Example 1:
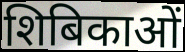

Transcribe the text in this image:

शिबिकाओं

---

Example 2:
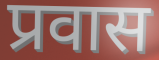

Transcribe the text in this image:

प्रवास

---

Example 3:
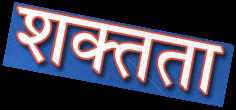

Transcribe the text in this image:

शक्तता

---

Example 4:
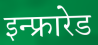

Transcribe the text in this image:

इन्फ्रारेड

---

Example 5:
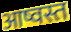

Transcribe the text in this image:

आष्वस्त